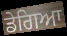
ਡੇਗਿਆ